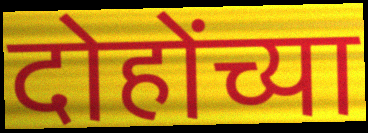
दोहोंच्या